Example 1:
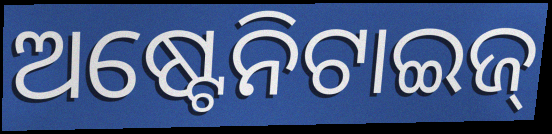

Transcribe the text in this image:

ଅଷ୍ଟେନିଟାଇଜ୍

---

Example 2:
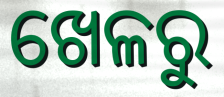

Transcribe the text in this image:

ଖେଳରୁ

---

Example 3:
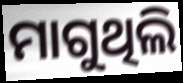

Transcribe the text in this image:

ମାଗୁଥିଲି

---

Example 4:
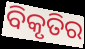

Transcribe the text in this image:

ବିକୃତିର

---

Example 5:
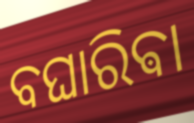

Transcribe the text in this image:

ବଘାରିଵା